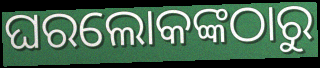
ଘରଲୋକଙ୍କଠାରୁ